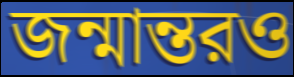
জন্মান্তরও